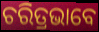
ଚରିତ୍ରଭାବେ